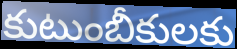
కుటుంబీకులకు